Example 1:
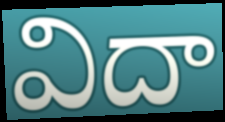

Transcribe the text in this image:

విదా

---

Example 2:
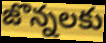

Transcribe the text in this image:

జొన్నలకు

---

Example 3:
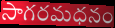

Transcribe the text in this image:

సాగరమధనం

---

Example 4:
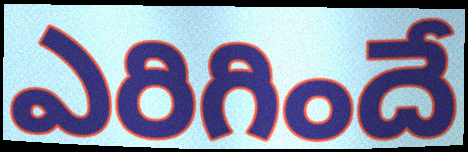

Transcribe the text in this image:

ఎరిగిందే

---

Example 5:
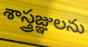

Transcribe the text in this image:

శాస్త్రజ్ఞులను